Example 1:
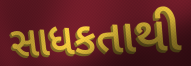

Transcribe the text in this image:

સાધકતાથી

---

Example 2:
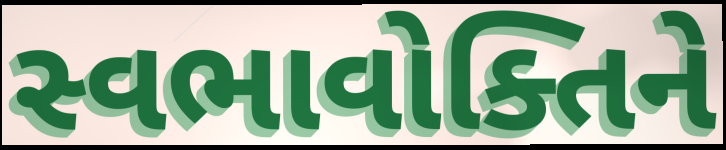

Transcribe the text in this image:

સ્વભાવોક્તિને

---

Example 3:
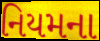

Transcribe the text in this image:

નિયમના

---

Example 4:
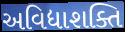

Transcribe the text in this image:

અવિદ્યાશક્તિ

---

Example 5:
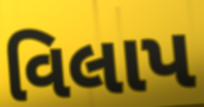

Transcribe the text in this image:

વિલાપ